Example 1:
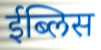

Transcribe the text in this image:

ईब्लिस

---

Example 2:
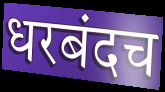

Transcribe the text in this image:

धरबंदच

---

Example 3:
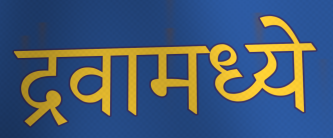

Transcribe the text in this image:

द्रवामध्ये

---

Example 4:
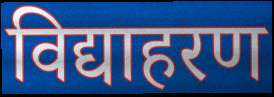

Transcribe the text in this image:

विद्याहरण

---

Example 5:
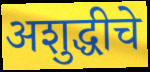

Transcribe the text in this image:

अशुद्धीचे